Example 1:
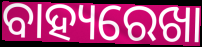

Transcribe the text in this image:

ବାହ୍ୟରେଖା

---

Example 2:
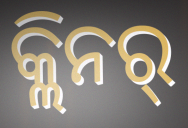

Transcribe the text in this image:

କ୍ଲିନର୍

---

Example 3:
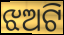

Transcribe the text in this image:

ଝଅଟି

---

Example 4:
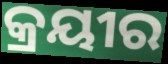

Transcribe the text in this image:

କ୍ରୟୀର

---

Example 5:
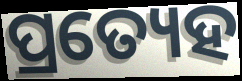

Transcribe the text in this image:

ପ୍ରତ୍ୟେହ